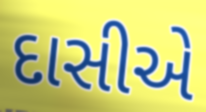
દાસીએ